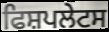
ਫਿਸ਼ਪਲੇਟਸ